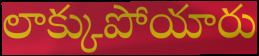
లాక్కుపోయారు